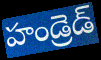
హండ్రెడ్